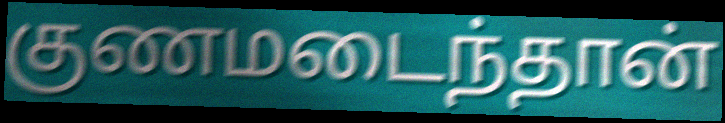
குணமடைந்தான்